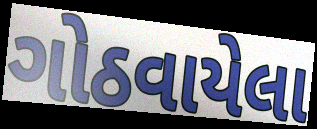
ગોઠવાયેલા